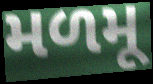
મળમૂ